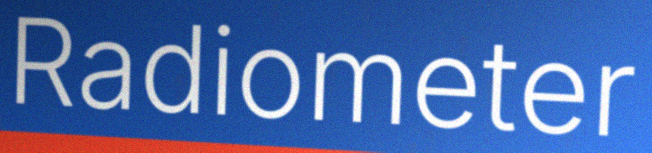
Radiometer